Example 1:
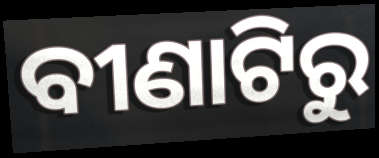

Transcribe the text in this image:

ବୀଣାଟିରୁ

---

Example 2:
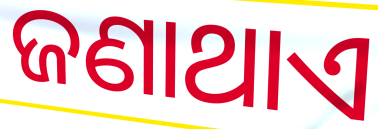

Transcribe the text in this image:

ଜଣାଥାଏ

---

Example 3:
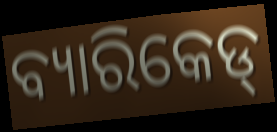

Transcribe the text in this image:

ବ୍ୟାରିକେଡ୍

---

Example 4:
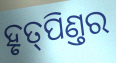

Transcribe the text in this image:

ହୃତ୍‌ପିଣ୍ତର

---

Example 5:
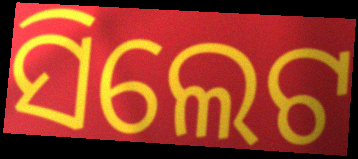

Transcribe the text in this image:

ସିଲେଟ